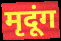
मृदूंग